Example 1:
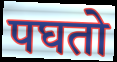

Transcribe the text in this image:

पघतो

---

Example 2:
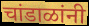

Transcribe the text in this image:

चांडाळांनी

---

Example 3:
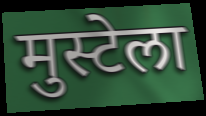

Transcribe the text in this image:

मुस्टेला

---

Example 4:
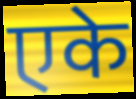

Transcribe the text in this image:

एके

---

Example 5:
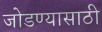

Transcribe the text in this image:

जोडण्यासाठी